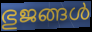
ഭുജങ്ങൾ